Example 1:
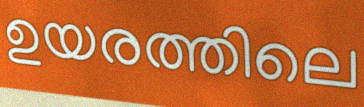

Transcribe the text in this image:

ഉയരത്തിലെ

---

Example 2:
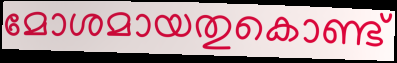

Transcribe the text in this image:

മോശമായതുകൊണ്ട്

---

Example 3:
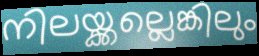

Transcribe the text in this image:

നിലയ്ക്കല്ലെങ്കിലും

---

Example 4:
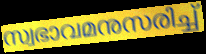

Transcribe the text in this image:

സ്വഭാവമനുസരിച്ച്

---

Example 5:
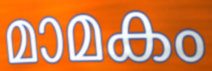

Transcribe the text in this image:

മാമകം